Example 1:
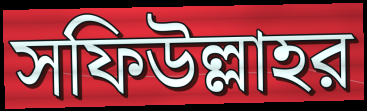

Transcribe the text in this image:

সফিউল্লাহর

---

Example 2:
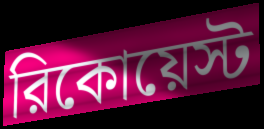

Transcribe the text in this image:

রিকোয়েস্ট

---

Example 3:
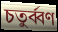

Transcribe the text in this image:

চতুর্ব্বণ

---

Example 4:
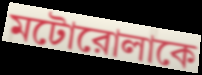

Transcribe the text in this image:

মটোরোলাকে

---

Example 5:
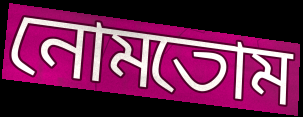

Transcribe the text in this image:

নোমতোম